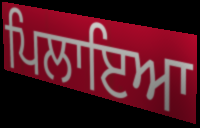
ਪਿਲਾਇਆ